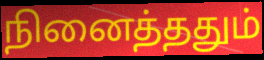
நினைத்ததும்